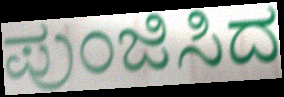
ಪುಂಜಿಸಿದ